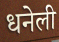
धनेली